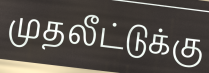
முதலீட்டுக்கு